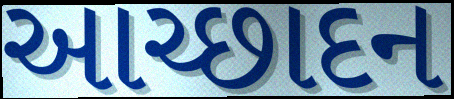
આચ્છાદન